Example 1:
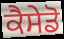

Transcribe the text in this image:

ਕੈਸੇਡੋ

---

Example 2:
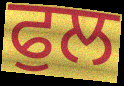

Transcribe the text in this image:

ਫੁਲ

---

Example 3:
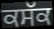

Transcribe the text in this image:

ਕਸੱਕ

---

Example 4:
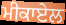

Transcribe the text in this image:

ਮੀਕਾਏਲ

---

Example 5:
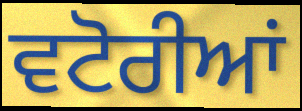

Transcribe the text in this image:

ਵਟੋਰੀਆਂ